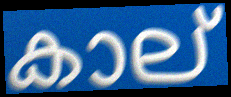
കാല്